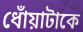
ধোঁয়াটাকে